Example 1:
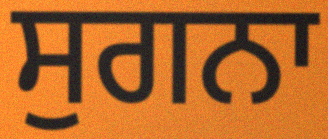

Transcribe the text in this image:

ਸੁਗਨਾ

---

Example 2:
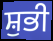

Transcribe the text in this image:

ਸ਼ੁਭੀ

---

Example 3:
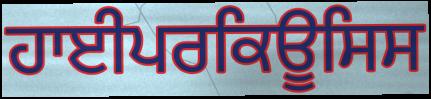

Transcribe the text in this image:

ਹਾਈਪਰਕਿਊਸਿਸ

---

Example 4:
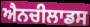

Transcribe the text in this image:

ਐਨਚੀਲਾਡਸ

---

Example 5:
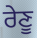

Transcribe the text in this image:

ਰੇਣੂ